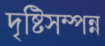
দৃষ্টিসম্পন্ন